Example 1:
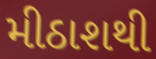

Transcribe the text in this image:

મીઠાશથી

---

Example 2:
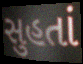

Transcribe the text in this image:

સુહતાં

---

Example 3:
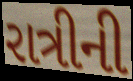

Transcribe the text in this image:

રાત્રીની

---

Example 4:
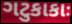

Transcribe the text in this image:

ગટુકાકાઃ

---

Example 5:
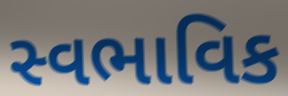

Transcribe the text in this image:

સ્વભાવિક